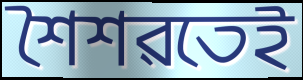
শৈশৱতেই